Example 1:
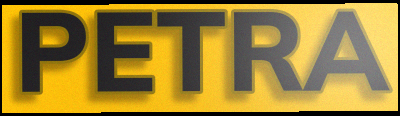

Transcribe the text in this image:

PETRA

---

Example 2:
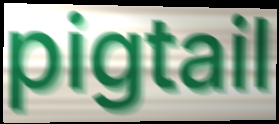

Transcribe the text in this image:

pigtail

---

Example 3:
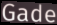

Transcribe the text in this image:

Gade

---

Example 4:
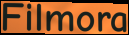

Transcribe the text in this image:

Filmora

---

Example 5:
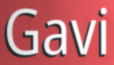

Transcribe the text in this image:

Gavi